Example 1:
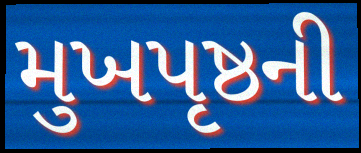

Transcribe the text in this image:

મુખપૃષ્ઠની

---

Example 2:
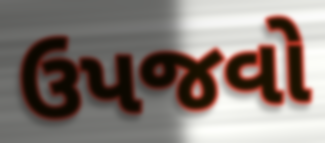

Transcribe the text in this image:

ઉપજવો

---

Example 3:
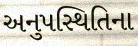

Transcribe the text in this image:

અનુપસ્થિતિના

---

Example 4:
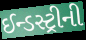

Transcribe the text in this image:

ઈન્ડસ્ટ્રીની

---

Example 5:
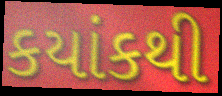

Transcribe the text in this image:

કયાંકથી